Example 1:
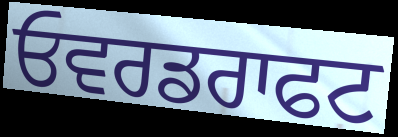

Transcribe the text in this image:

ਓਵਰਡਰਾਫਟ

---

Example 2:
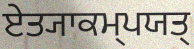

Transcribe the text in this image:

ਏਤ੍ਯਾਕਮ੍ਪਯਤ੍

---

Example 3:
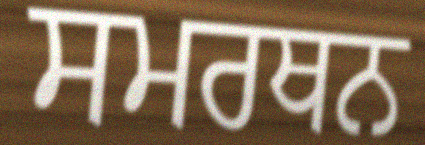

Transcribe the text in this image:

ਸਮਰਥਨ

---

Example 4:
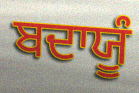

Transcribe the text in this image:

ਬਦਾਯੂੰ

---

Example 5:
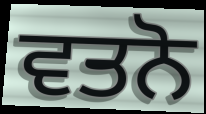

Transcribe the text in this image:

ਵਤਨੋ